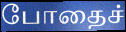
போதைச்